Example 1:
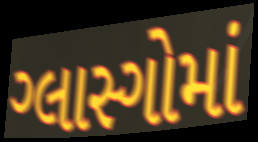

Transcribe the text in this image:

ગ્લાસ્ગોમાં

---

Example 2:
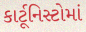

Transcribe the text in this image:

કાર્ટૂનિસ્ટોમાં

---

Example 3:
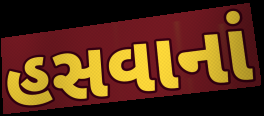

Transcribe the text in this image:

હસવાનાં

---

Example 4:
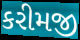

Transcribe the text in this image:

કરીમજી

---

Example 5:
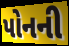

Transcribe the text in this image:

પોનની